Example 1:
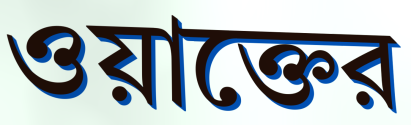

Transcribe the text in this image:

ওয়াক্তের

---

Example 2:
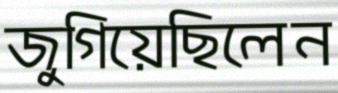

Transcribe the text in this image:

জুগিয়েছিলেন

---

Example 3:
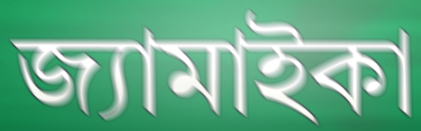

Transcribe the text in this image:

জ্যামাইকা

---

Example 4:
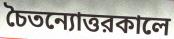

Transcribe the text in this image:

চৈতন্যোত্তরকালে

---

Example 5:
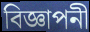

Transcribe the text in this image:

বিজ্ঞাপনী